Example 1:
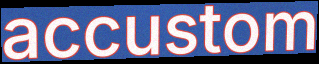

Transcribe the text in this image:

accustom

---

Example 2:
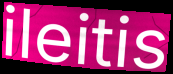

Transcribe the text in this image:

ileitis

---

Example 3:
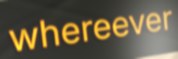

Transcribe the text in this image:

whereever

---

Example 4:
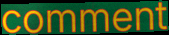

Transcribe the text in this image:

comment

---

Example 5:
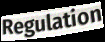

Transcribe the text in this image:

Regulation